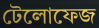
টেলোফেজ